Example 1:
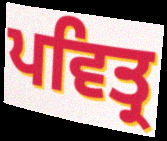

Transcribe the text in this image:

ਪਵਿਤ੍ਰ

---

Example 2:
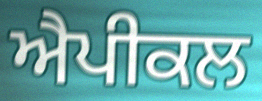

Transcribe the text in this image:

ਐਪੀਕਲ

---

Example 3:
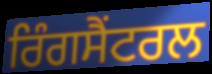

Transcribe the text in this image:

ਰਿੰਗਸੈਂਟਰਲ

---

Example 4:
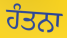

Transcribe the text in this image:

ਹੰਤਨਾ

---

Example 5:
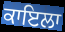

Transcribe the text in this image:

ਕਾਇਲਾ